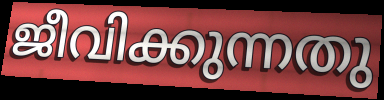
ജീവിക്കുന്നതു